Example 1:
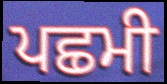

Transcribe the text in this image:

ਪਛਮੀ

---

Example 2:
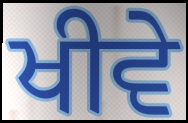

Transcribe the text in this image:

ਖੀਵੇ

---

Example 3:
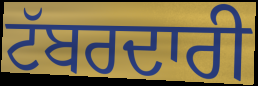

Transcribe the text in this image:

ਟੱਬਰਦਾਰੀ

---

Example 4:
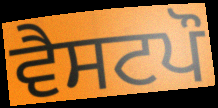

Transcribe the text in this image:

ਵੈਸਟਪੌ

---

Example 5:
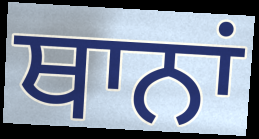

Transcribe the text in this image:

ਥਾਨਾਂ